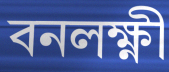
বনলক্ষ্ণী